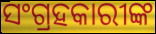
ସଂଗ୍ରହକାରୀଙ୍କ